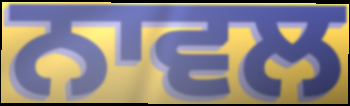
ਨਾਵਲ